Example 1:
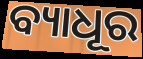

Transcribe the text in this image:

ବ୍ୟାଧୂର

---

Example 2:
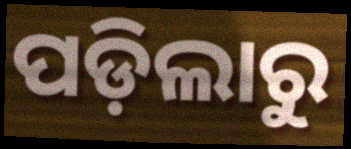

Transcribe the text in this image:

ପଡ଼ିଲାରୁ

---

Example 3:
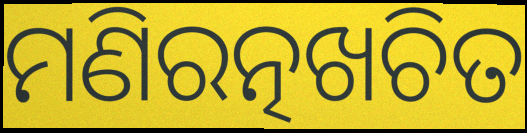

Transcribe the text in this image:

ମଣିରତ୍ନଖଚିତ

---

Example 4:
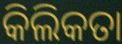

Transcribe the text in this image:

କିଲିକତା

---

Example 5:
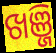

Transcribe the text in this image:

ଖଞ୍ଜି